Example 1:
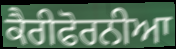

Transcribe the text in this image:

ਕੈਰੀਫੋਰਨੀਆ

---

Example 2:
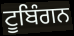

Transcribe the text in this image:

ਟੂਬਿੰਗਨ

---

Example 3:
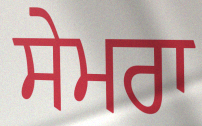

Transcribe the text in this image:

ਸੇਮਰਾ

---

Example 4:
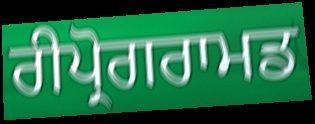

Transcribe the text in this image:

ਰੀਪ੍ਰੋਗਰਾਮਡ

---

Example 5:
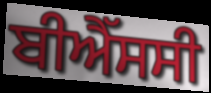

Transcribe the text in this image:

ਬੀਐੱਸਸੀ